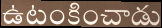
ఉటంకించాడు